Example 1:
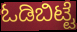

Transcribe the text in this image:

ಓಡಿಬಿಟ್ಟೆ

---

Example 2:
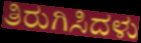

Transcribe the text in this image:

ತಿರುಗಿಸಿದಳು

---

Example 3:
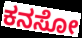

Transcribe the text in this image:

ಕನಸೋ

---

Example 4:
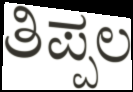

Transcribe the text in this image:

ತಿಪ್ಪಲ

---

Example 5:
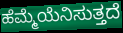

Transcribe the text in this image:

ಹೆಮ್ಮೆಯೆನಿಸುತ್ತದೆ